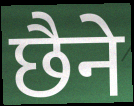
छैने